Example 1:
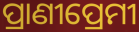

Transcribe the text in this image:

ପ୍ରାଣୀପ୍ରେମୀ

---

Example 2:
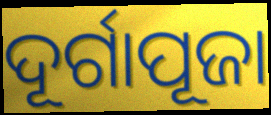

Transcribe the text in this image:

ଦୂର୍ଗାପୂଜା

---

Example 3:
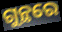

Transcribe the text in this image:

ଗୁନ୍ଥରେ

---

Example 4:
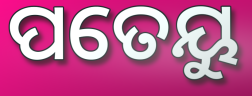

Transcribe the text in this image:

ପତେୟୁ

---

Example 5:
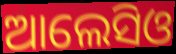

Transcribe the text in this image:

ଆଲେସିଓ